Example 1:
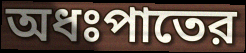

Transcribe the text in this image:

অধঃপাতের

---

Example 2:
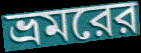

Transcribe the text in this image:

ভ্রমরের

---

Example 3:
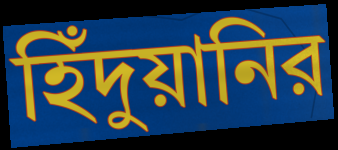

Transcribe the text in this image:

হিঁদুয়ানির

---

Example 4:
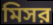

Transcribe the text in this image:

মিসর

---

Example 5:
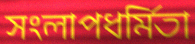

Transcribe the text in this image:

সংলাপধর্মিতা